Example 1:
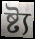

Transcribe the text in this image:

ষ্ট্য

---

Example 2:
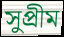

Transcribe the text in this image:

সুপ্রীম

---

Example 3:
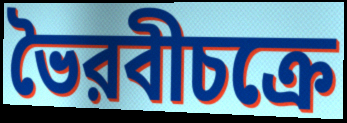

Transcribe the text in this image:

ভৈরবীচক্রে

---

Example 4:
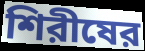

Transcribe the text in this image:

শিরীষের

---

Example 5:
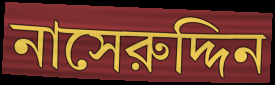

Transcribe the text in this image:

নাসেরুদ্দিন